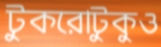
টুকরোটুকুও